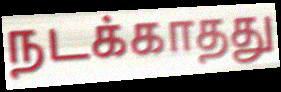
நடக்காதது